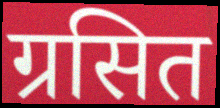
ग्रसित